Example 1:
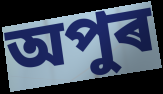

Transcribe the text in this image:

অপুৰ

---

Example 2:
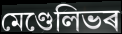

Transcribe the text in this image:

মেণ্ডেলিভৰ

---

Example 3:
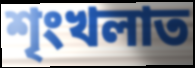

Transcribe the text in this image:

শৃংখলাত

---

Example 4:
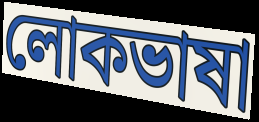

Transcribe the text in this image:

লোকভাষা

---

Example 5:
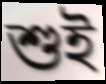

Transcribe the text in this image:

শুই